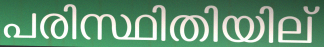
പരിസ്ഥിതിയില്